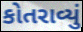
કોતરાવ્યું